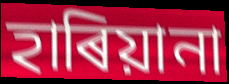
হাৰিয়ানা